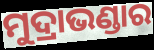
ମୁଦ୍ରାଭଣ୍ଡାର